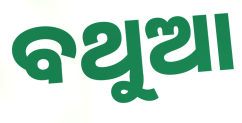
ବଥୁଆ